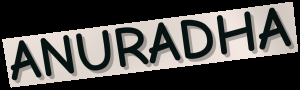
ANURADHA